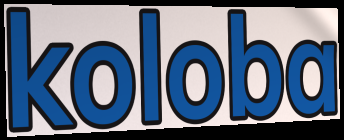
koloba